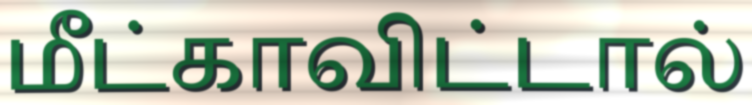
மீட்காவிட்டால்